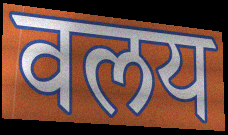
वलय